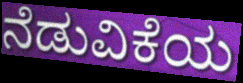
ನೆಡುವಿಕೆಯ